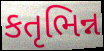
કતૃભિન્ન